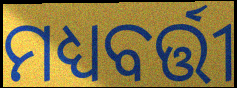
ମଧ୍ୟବର୍ତ୍ତୀ